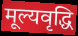
मूल्यवृद्धि